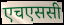
एचएससी